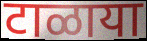
टाळाया